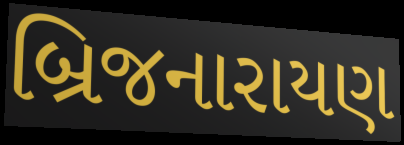
બ્રિજનારાયણ